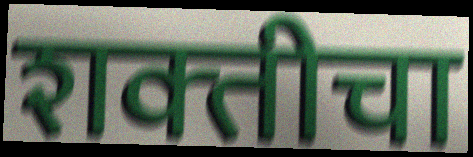
शक्‍तीचा